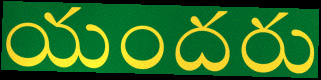
యందరు